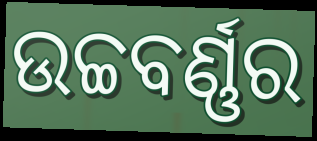
ଉଚ୍ଚବର୍ଣ୍ଣର